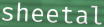
sheetal